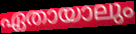
ഏതായാലും